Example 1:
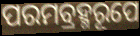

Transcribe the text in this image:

ପରମବ୍ରହ୍ମରୂପେ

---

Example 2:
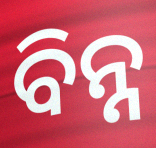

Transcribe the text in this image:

ବିନ୍ନ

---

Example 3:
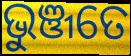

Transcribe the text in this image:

ଭୁଞ୍ଜତେ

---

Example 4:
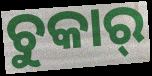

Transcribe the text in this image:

ଚୁକାର୍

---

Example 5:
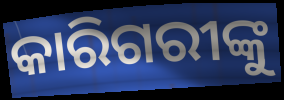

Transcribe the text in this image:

କାରିଗରୀଙ୍କୁ